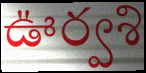
ఊర్వశి